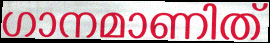
ഗാനമാണിത്